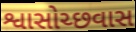
શ્વાસોચ્છવાસ